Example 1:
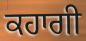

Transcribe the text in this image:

ਕਹਾਗੀ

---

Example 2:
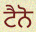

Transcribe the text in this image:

ਟੈਨੋ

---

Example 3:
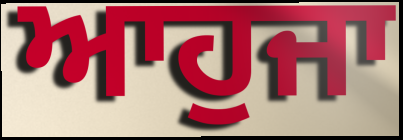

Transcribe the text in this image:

ਆਹੁਜਾ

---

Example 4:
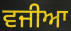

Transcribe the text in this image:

ਵਜੀਆ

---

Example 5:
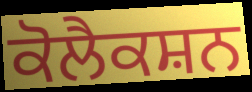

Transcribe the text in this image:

ਕੋਲੈਕਸ਼ਨ